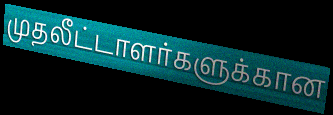
முதலீட்டாளர்களுக்கான